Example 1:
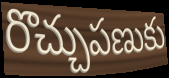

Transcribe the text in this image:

రొచ్చుపణుకు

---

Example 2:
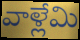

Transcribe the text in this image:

వాళ్లేమి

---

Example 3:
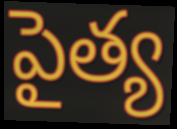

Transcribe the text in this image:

పైత్య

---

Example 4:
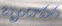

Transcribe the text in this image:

బృందావన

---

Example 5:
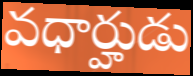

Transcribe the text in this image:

వధార్హుడు